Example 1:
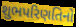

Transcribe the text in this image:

શુભપરિણતિનો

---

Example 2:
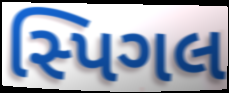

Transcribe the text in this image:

સ્પિગલ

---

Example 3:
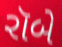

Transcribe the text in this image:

રૉબે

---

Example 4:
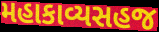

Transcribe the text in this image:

મહાકાવ્યસહજ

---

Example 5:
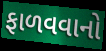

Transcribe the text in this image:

ફાળવવાનો